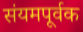
संयमपूर्वक